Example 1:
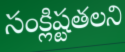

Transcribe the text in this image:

సంక్లిష్టతలని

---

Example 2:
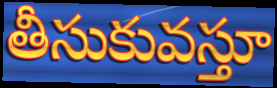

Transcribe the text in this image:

తీసుకువస్తూ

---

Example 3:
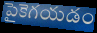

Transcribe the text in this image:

పైకెగయడం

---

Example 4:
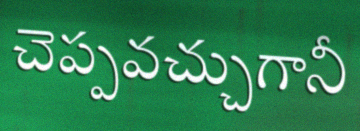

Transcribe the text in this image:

చెప్పవచ్చుగానీ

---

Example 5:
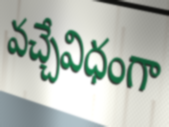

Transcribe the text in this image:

వచ్చేవిధంగా